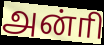
அன்ரி